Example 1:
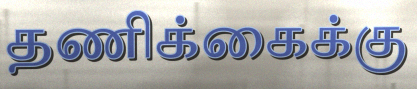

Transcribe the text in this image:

தணிக்கைக்கு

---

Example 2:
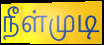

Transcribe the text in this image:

நீள்முடி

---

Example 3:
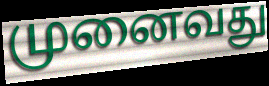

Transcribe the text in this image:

முனைவது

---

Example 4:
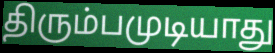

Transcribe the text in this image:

திரும்பமுடியாது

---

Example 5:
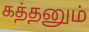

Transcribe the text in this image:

கத்தனும்